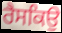
ਰੈਸਕਿਉ